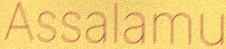
Assalamu